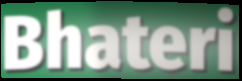
Bhateri